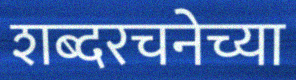
शब्दरचनेच्या